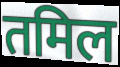
तमिल